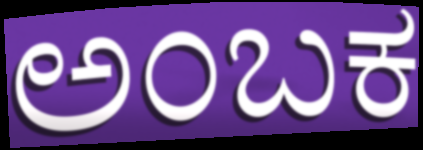
ಅಂಬಕ